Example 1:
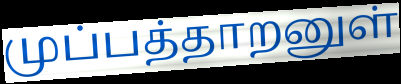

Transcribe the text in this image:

முப்பத்தாறனுள்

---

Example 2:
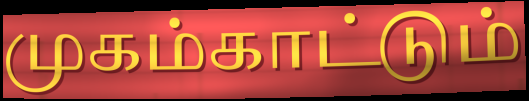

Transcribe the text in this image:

முகம்காட்டும்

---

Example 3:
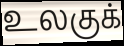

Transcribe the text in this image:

உலகுக்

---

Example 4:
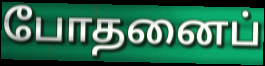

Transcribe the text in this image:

போதனைப்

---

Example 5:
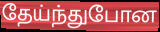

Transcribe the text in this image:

தேய்ந்துபோன